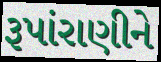
રૂપાંરાણીને